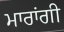
ਮਾਰਾਂਗੀ